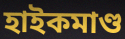
হাইকমাণ্ড